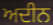
ਅਦੀਨ